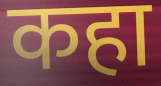
कहा